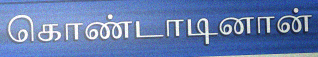
கொண்டாடினான்